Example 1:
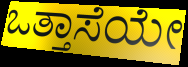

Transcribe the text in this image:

ಒತ್ತಾಸೆಯೇ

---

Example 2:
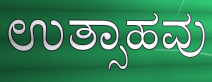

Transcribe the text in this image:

ಉತ್ಸಾಹವು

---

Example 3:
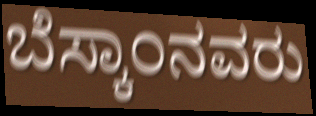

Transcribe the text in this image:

ಬೆಸ್ಕಾಂನವರು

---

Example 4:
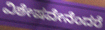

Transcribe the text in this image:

ವಿಶೇಷವೇನೆಂದರೆ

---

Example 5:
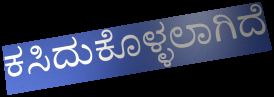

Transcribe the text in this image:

ಕಸಿದುಕೊಳ್ಳಲಾಗಿದೆ